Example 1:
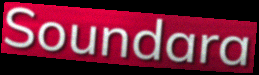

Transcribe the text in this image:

Soundara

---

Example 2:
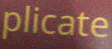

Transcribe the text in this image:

plicate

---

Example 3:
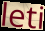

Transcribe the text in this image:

leti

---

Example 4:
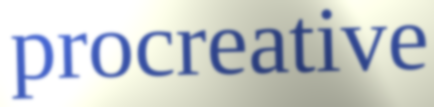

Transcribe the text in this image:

procreative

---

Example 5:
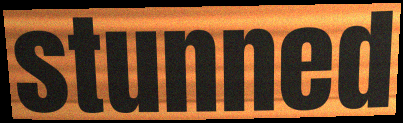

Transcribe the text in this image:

stunned